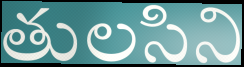
తులసిని